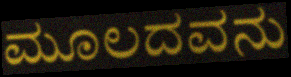
ಮೂಲದವನು